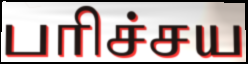
பரிச்சய